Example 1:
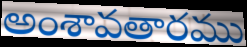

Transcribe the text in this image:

అంశావతారము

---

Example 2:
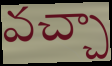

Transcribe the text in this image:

వచ్చా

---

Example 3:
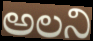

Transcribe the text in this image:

అలని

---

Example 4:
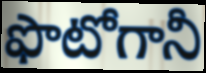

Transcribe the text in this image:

ఫొటోగానీ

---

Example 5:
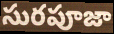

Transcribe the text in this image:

సురపూజా